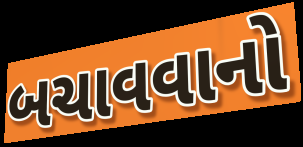
બચાવવાનો